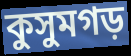
কুসুমগড়